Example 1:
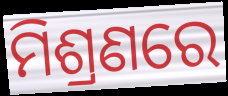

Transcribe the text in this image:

ମିଶ୍ରଣରେ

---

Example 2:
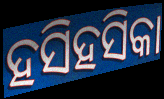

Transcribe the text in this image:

ହସିହସିକା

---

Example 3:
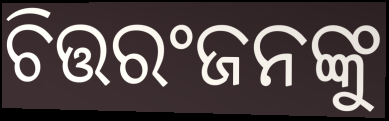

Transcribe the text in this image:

ଚିତ୍ତରଂଜନଙ୍କୁ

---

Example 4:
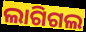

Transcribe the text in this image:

ଲାଗିଗଲ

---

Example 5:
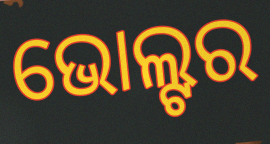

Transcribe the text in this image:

ଭୋଲ୍ଟର